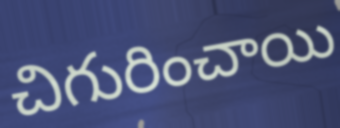
చిగురించాయి